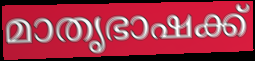
മാതൃഭാഷക്ക്